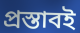
প্রস্তাবই